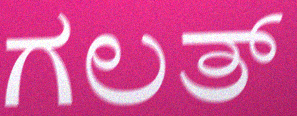
ಗಲತ್